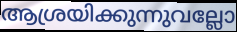
ആശ്രയിക്കുന്നുവല്ലോ